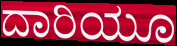
ದಾರಿಯೂ